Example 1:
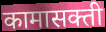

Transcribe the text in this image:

कामासक्ती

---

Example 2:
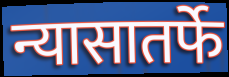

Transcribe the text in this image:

न्यासातर्फे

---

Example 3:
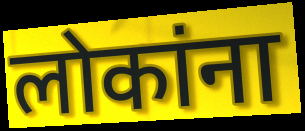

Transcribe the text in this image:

लोकांना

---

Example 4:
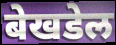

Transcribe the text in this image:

बेखडेल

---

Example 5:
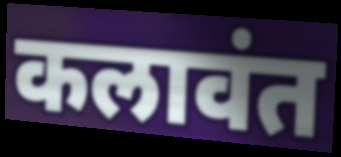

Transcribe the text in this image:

कलावंत